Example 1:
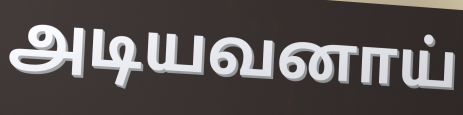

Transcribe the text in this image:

அடியவனாய்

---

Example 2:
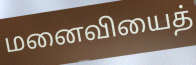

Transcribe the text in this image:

மனைவியைத்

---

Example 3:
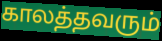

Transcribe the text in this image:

காலத்தவரும்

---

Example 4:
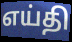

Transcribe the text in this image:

எய்தி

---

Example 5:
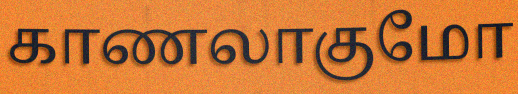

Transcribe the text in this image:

காணலாகுமோ